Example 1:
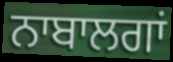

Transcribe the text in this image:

ਨਾਬਾਲਗਾਂ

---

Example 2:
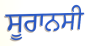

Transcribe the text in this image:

ਸੂਰਾਨਸੀ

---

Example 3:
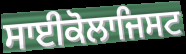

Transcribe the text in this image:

ਸਾਈਕੋਲਾਜਿਸਟ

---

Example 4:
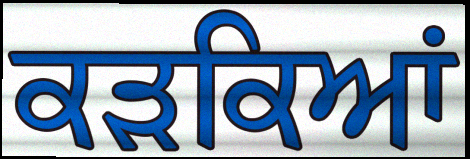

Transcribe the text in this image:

ਕੜਕਿਆਂ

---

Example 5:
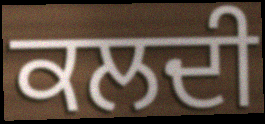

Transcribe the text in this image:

ਕਲਦੀ